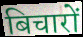
बिचारों